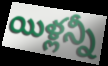
యిళ్లన్నీ